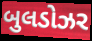
બુલડોઝર